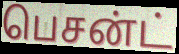
பெசன்ட்